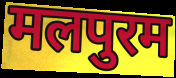
मलपुरम